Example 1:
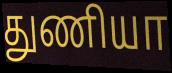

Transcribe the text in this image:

துணியா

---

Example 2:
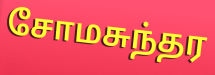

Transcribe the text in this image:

சோமசுந்தர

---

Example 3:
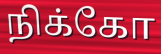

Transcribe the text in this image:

நிக்கோ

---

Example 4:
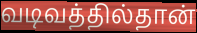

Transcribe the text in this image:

வடிவத்தில்தான்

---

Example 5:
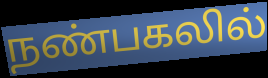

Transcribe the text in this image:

நண்பகலில்